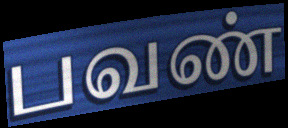
பவண்